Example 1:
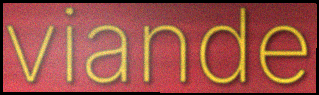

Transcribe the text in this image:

viande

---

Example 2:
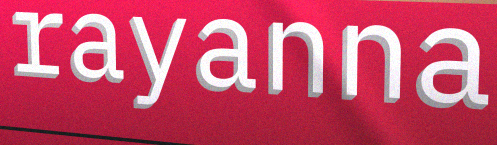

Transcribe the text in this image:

rayanna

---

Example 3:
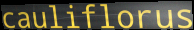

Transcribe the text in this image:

cauliflorus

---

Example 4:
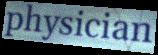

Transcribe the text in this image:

physician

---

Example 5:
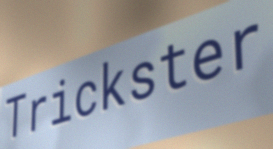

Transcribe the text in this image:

Trickster